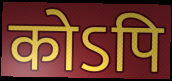
कोऽपि